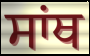
ਸਾਂਥ